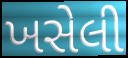
ખસેલી